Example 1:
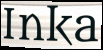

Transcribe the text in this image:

Inka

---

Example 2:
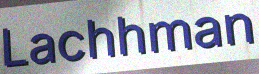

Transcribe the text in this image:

Lachhman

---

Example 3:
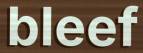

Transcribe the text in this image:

bleef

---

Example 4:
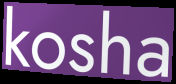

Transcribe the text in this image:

kosha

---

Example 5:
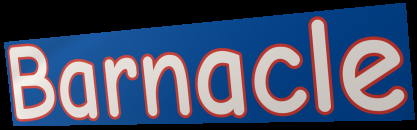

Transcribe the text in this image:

Barnacle